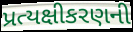
પ્રત્યક્ષીકરણની